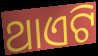
ଥାଏଟି